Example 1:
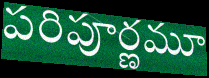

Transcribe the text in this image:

పరిపూర్ణమూ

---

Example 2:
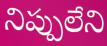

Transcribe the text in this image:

నిప్పులేని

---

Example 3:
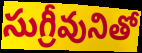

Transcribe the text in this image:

సుగ్రీవునితో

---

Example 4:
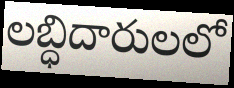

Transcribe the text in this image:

లబ్ధిదారులలో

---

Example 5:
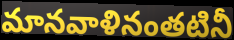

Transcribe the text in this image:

మానవాళినంతటినీ